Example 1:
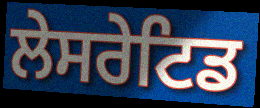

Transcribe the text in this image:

ਲੇਸਰੇਟਿਡ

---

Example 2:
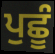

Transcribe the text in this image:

ਪੁਛੂੰ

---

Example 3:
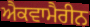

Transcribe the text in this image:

ਐਕਵਾਮੈਰੀਨ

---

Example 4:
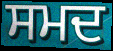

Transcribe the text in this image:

ਸਮਦ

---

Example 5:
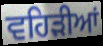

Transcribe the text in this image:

ਵਹਿੜੀਆਂ